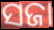
ସଜା